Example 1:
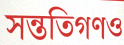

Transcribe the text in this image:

সন্ততিগণও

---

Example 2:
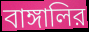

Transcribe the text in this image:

বাঙ্গালির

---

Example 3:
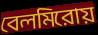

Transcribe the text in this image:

বেলমিরোয়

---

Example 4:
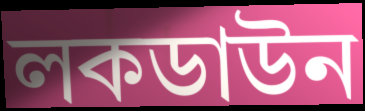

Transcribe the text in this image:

লকডাউন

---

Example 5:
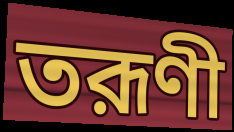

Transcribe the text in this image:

তরূণী